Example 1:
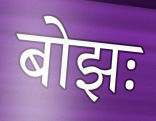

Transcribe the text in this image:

बोझः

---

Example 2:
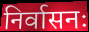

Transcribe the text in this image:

निर्वासनः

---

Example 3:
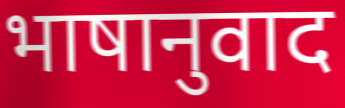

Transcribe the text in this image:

भाषानुवाद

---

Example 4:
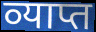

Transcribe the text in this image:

व्‍याप्‍त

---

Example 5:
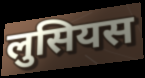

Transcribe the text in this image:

लुसियस